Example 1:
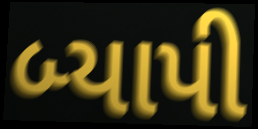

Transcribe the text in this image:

બ્યાપી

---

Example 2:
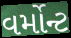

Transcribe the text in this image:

વર્મોન્ટ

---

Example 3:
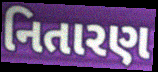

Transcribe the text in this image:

નિતારણ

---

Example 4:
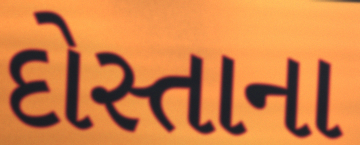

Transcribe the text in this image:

દોસ્તાના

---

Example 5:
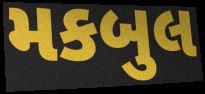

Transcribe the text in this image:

મકબુલ